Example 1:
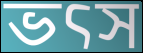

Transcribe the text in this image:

ভৎস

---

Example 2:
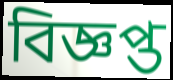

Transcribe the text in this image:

বিজ্ঞপ্ত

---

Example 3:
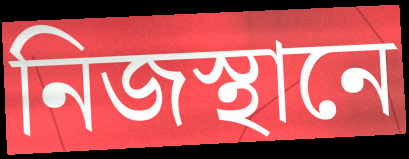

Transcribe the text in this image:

নিজস্থানে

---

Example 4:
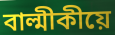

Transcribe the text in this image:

বাল্মীকীয়ে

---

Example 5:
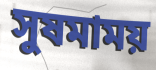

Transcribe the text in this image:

সুষমাময়